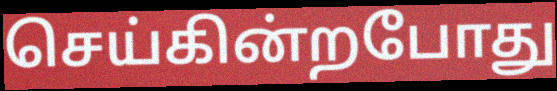
செய்கின்றபோது